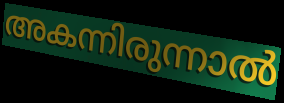
അകന്നിരുന്നാൽ